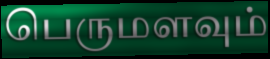
பெருமளவும்